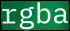
rgba